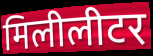
मिलीलीटर